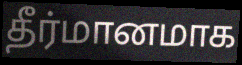
தீர்மானமாக